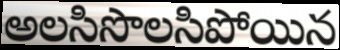
అలసిసొలసిపోయిన